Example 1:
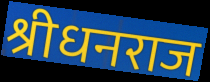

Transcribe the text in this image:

श्रीधनराज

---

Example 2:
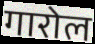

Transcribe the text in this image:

गारोल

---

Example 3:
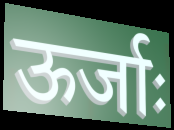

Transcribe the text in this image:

ऊर्जाः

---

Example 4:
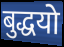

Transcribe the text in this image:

बुद्धयो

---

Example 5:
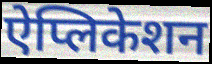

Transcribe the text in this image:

ऐप्लिकेशन